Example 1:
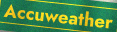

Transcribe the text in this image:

Accuweather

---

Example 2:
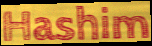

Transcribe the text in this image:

Hashim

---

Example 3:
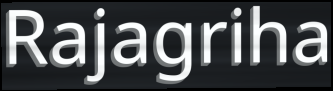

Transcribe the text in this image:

Rajagriha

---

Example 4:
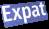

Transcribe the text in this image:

Expat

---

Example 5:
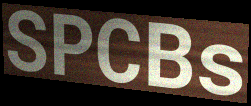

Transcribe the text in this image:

SPCBs